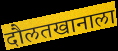
दौलतखानाला